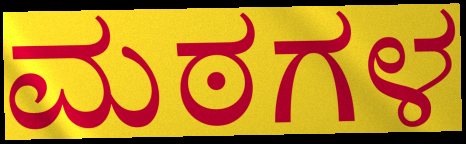
ಮಠಗಳ